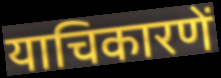
याचिकारणें